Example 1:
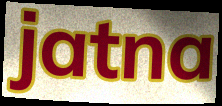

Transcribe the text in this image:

jatna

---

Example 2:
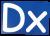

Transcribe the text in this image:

Dx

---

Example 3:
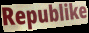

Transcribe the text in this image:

Republike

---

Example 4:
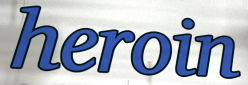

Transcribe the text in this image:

heroin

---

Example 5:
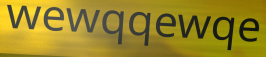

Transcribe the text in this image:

wewqqewqe